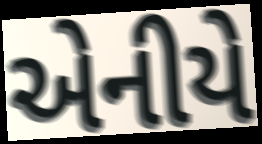
એનીયે